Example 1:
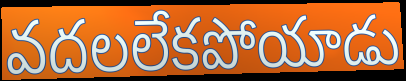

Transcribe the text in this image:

వదలలేకపోయాడు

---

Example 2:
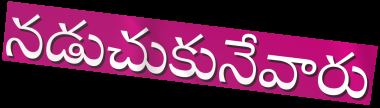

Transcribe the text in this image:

నడుచుకునేవారు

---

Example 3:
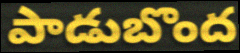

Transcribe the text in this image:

పాడుబొంద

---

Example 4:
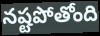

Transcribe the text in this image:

నష్టపోతోంది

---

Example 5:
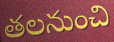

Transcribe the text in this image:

తలనుంచి